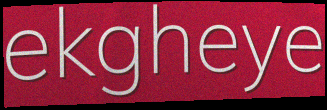
ekgheye